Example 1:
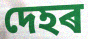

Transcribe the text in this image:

দেহৰ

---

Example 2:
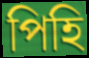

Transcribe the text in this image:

পিহি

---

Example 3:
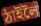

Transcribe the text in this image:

ঠাইলৈ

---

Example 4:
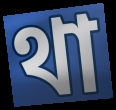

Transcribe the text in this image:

থা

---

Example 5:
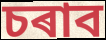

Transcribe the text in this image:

চৰাব